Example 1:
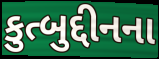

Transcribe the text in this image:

કુત્બુદ્દીનના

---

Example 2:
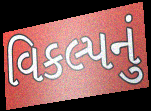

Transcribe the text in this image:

વિકલ્પનું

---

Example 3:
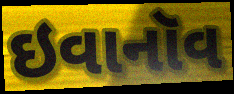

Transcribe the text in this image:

ઇવાનૉવ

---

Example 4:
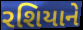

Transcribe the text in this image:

રશિયાને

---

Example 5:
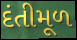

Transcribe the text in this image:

દંતીમૂળ